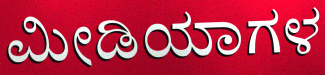
ಮೀಡಿಯಾಗಳ